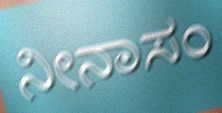
ನೀನಾಸಂ